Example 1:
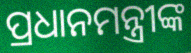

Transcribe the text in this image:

ପ୍ରଧାନମନ୍ତ୍ରୀଙ୍କ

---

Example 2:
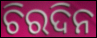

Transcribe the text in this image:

ଚିରଦିନ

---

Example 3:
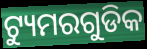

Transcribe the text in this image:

ଟ୍ୟୁମରଗୁଡିକ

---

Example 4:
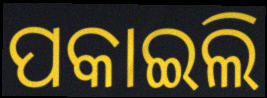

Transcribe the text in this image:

ପକାଇଲି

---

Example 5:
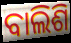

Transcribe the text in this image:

ବାଲିଶି